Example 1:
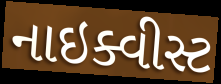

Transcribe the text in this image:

નાઇક્વીસ્ટ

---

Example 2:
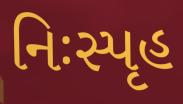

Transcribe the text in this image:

નિઃસ્પૃહ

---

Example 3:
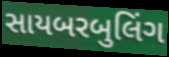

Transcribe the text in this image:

સાયબરબુલિંગ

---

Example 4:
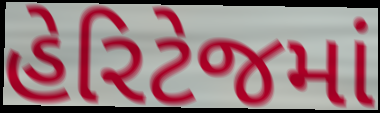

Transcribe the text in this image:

હેરિટેજમાં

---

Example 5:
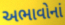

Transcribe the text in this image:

અભાવોનાં